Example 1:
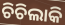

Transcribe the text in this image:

ଚିଚିଲାକି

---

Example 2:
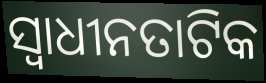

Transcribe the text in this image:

ସ୍ୱାଧୀନତାଟିକ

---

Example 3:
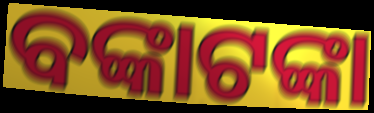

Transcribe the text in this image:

ବଙ୍କାଟଙ୍କା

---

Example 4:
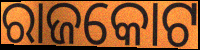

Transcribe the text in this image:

ରାଜକୋଟ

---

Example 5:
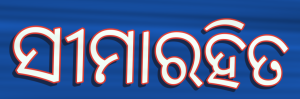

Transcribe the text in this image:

ସୀମାରହିତ